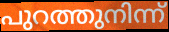
പുറത്തുനിന്ന്